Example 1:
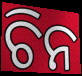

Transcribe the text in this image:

ଚିନ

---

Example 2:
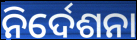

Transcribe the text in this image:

ନିର୍ଦେଶନା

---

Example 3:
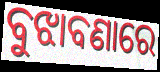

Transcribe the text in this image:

ବୁଝାବଣାରେ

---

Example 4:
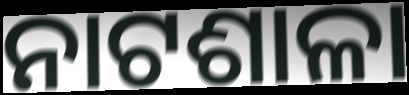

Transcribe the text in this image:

ନାଟଶାଳା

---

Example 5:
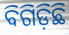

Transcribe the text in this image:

ବିଗିଡ଼ିଛି